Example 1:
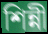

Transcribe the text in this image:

শিন্নী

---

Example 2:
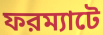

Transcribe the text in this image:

ফরম্যাটে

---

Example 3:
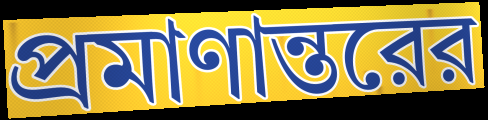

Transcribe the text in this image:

প্রমাণান্তরের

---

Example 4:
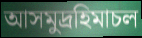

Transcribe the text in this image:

আসমুদ্রহিমাচল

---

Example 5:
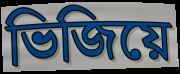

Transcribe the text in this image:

ভিজিয়ে